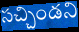
సచ్చిండని